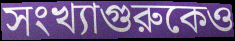
সংখ্যাগুরুকেও